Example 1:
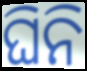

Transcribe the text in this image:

ଘିନି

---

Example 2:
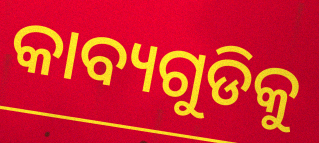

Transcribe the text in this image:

କାବ୍ୟଗୁଡିକୁ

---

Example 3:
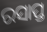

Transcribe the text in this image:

ରସାପ୍ତ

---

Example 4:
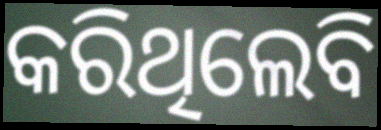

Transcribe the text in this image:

କରିଥିଲେବି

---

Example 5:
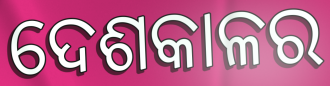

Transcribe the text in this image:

ଦେଶକାଳର